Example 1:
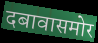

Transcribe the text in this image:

दबावासमोर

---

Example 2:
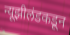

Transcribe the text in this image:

न्यूझीलंडकडून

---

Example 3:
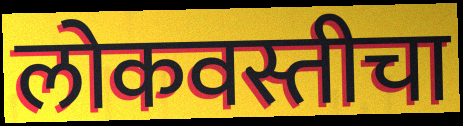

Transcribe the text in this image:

लोकवस्तीचा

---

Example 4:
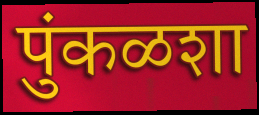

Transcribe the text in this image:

पुंकळशा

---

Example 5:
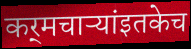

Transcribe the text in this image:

कर्मचाऱ्यांइतकेच